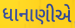
ધાનાણીએ